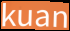
kuan